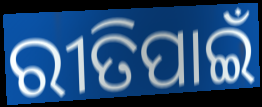
ରୀତିପାଇଁ